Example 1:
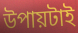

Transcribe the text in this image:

উপায়টাই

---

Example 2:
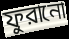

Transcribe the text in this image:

ফুরানো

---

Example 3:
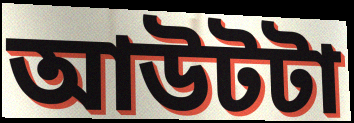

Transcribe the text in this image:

আউটটা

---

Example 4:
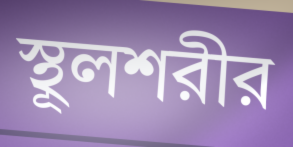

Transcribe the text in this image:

স্থূলশরীর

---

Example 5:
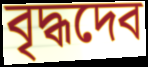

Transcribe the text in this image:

বৃদ্ধদেব